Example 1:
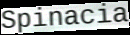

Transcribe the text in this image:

Spinacia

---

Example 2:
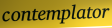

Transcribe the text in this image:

contemplator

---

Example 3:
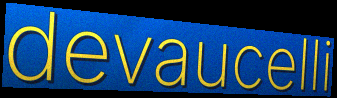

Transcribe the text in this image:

devaucelli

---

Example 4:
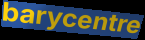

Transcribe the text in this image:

barycentre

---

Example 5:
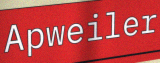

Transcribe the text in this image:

Apweiler